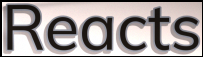
Reacts